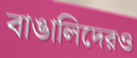
বাঙালিদেরও